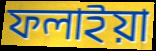
ফলাইয়া